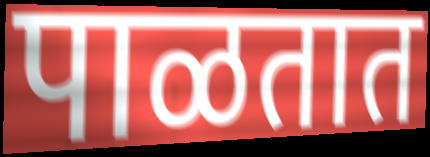
पाळतात